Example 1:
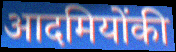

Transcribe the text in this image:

आदमियोंकी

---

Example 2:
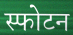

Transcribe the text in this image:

स्फोटन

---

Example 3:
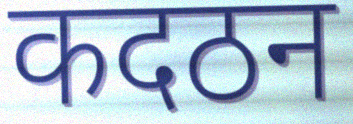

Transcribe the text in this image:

कदठन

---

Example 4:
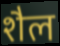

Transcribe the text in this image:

शैल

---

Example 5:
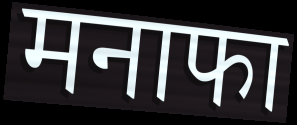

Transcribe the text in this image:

मनाफा